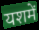
यशमें